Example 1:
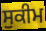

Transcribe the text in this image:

ਸੁਕੀਮ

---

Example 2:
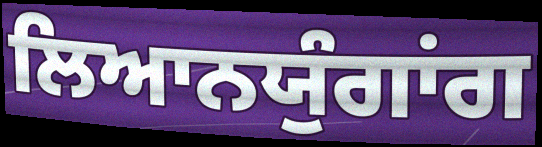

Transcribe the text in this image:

ਲਿਆਨਯੁੰਗਾਂਗ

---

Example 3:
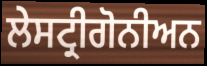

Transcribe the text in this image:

ਲੇਸਟ੍ਰੀਗੋਨੀਅਨ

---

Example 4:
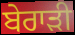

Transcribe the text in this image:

ਬੇਰਾੜੀ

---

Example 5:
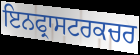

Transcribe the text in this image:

ਇਨਫ੍ਰਾਸਟਰਕਚਰ